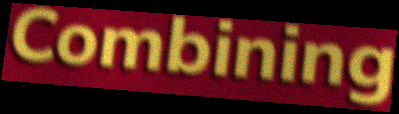
Combining